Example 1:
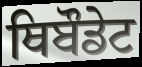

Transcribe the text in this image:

ਥਿਬੌਡੇਟ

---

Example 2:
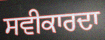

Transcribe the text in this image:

ਸਵੀਕਾਰਦਾ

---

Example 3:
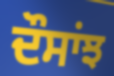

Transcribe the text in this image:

ਦੌਸਾਂਝ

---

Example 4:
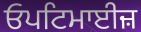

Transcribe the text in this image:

ਓਪਟਿਮਾਈਜ਼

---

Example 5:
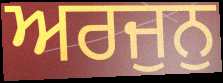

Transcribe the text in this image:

ਅਰਜੁਨੁ